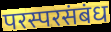
परस्परसंबंध